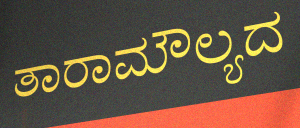
ತಾರಾಮೌಲ್ಯದ